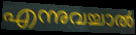
എന്നുവച്ചാൽ